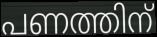
പണത്തിന്